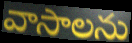
వాసాలను